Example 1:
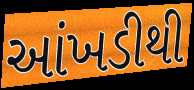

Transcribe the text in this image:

આંખડીથી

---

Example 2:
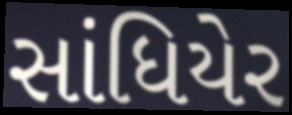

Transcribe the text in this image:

સાંધિયેર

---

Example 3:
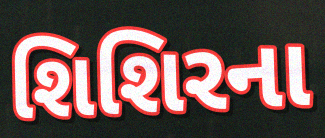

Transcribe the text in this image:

શિશિરના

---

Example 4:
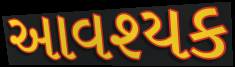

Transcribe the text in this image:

આવશ્યક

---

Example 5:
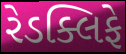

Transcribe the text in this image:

રેડક્લિફે